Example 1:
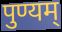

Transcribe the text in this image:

पुण्यम्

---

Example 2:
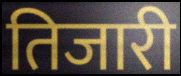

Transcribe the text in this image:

तिजारी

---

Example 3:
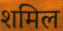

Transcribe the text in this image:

शमिल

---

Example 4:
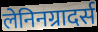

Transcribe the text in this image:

लेनिनग्रादर्स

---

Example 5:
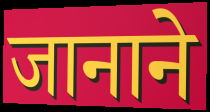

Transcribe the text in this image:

जानाने